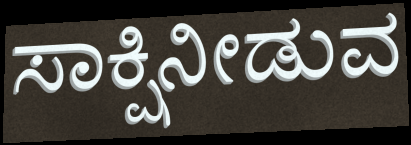
ಸಾಕ್ಷಿನೀಡುವ